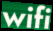
wifi